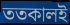
ততকালই